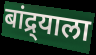
बांद्र्याला